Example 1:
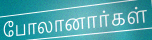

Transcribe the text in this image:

போலானார்கள்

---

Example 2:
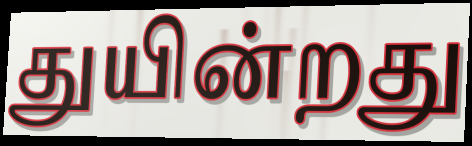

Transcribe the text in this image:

துயின்றது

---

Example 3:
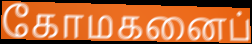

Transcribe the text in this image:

கோமகனைப்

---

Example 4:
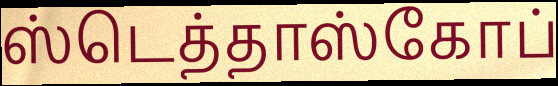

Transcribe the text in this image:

ஸ்டெத்தாஸ்கோப்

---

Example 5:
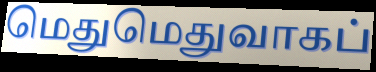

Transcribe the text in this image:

மெதுமெதுவாகப்